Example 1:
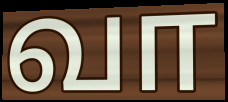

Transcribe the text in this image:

வா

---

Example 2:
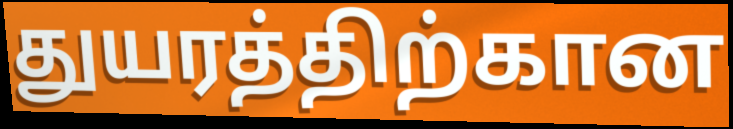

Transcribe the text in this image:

துயரத்திற்கான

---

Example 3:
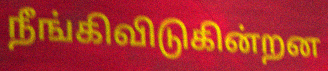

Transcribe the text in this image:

நீங்கிவிடுகின்றன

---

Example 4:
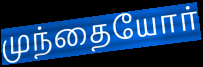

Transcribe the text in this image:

முந்தையோர்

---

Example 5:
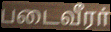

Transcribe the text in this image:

படைவீரர்